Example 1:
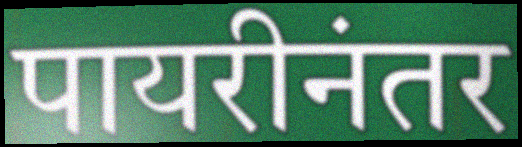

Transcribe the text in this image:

पायरीनंतर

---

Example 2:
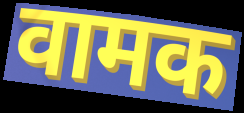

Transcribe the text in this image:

वामक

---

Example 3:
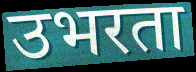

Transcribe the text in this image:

उभरता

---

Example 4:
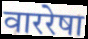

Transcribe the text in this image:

वाररेषा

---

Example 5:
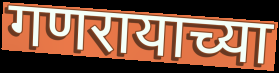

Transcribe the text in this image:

गणरायाच्या